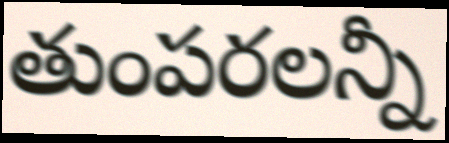
తుంపరలన్నీ